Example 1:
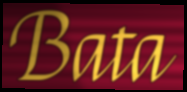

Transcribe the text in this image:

Bata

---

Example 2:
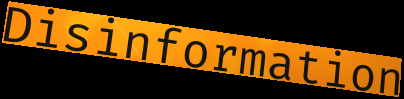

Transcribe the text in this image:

Disinformation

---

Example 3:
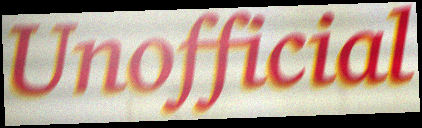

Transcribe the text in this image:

Unofficial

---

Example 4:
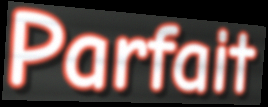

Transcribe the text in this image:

Parfait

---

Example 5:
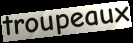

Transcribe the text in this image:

troupeaux